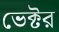
ভেক্টর